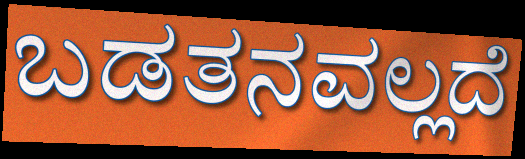
ಬಡತನವಲ್ಲದೆ